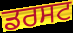
ਡਰਸਟ